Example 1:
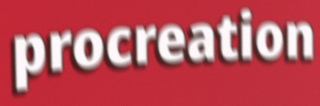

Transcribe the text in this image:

procreation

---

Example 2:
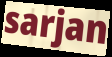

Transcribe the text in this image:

sarjan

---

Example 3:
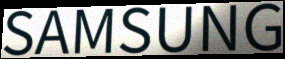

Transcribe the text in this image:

SAMSUNG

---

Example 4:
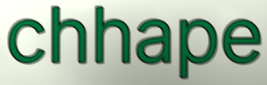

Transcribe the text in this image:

chhape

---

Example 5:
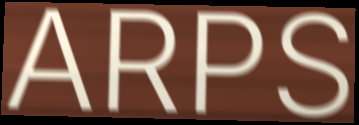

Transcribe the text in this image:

ARPS